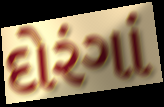
દોરંગાં